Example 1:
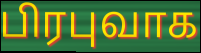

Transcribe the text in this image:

பிரபுவாக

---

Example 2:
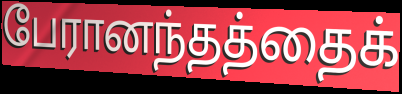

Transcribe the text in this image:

பேரானந்தத்தைக்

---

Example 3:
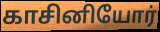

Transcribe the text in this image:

காசினியோர்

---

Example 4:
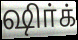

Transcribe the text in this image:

ஷிர்க்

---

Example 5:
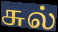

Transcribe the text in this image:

சுல்